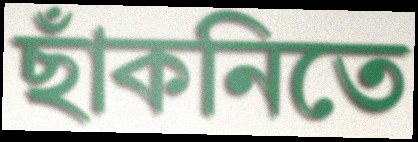
ছাঁকনিতে